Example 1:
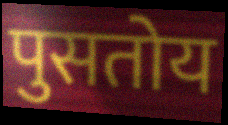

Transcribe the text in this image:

पुसतोय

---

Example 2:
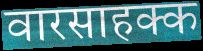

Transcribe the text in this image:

वारसाहक्क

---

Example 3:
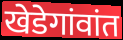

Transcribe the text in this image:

खेडेगांवांत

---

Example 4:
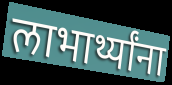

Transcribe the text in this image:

लाभार्थ्यांना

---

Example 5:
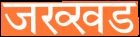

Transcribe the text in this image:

जख्खड